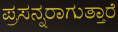
ಪ್ರಸನ್ನರಾಗುತ್ತಾರೆ